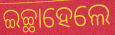
ଇଚ୍ଛାହେଲେ